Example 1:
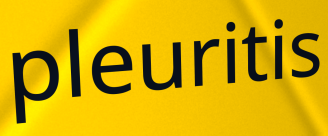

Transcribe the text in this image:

pleuritis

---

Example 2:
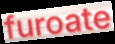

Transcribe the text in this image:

furoate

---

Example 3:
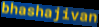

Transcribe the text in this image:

bhashajivan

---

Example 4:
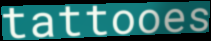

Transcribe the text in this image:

tattooes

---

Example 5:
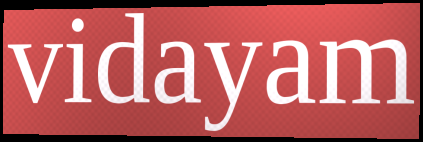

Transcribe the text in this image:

vidayam